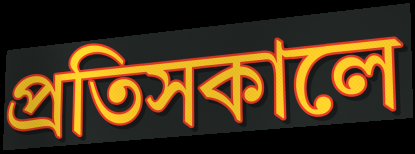
প্রতিসকালে